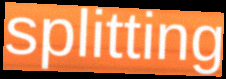
splitting